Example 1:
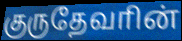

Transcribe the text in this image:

குருதேவரின்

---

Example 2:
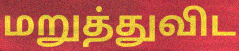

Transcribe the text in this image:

மறுத்துவிட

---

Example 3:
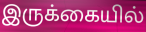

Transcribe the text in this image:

இருக்கையில்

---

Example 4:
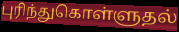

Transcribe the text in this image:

புரிந்துகொள்ளுதல்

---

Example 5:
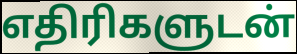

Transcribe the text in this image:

எதிரிகளுடன்